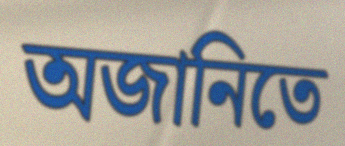
অজানিতে